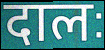
दालः